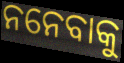
ନନେବାକୁ